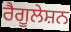
ਰੈਗੂਲੇਸ਼ਨ